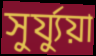
সুর্য্যুয়া